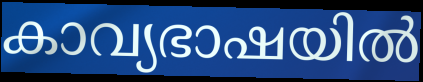
കാവ്യഭാഷയിൽ